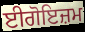
ਈਗੋਇਜ਼ਮ